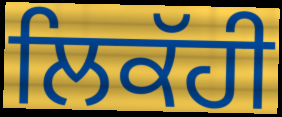
ਲਿਕੱਹੀ